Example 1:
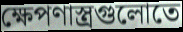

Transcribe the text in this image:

ক্ষেপণাস্ত্রগুলোতে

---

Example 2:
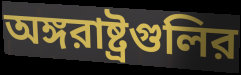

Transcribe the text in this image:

অঙ্গরাষ্ট্রগুলির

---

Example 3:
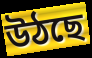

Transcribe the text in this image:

উঠছে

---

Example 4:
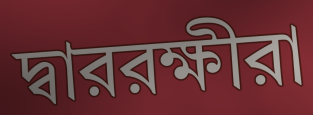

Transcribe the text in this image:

দ্বাররক্ষীরা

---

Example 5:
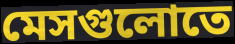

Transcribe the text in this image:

মেসগুলোতে